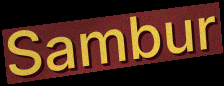
Sambur